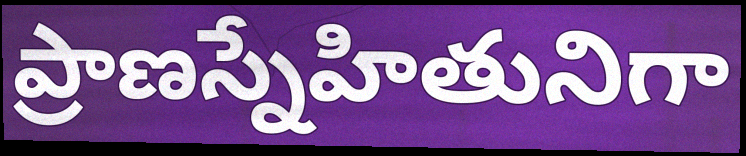
ప్రాణస్నేహితునిగా